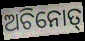
ଅଚିନୋତ୍